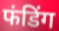
फंडिंग